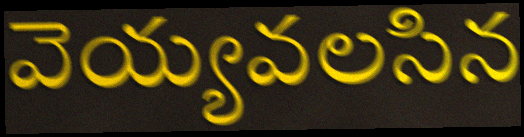
వెయ్యవలసిన